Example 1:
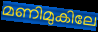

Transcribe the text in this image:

മണിമുകിലേ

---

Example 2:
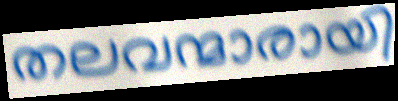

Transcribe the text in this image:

തലവന്മാരായി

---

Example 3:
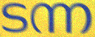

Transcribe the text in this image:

ടന്ന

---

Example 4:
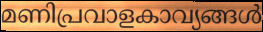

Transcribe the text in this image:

മണിപ്രവാളകാവ്യങ്ങൾ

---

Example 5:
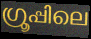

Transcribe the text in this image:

ഗ്രൂപ്പിലെ